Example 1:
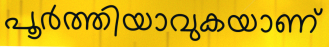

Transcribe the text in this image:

പൂർത്തിയാവുകയാണ്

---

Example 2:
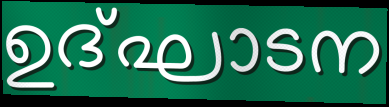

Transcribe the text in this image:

ഉദ്ഘാടന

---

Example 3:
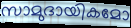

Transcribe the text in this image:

സാമുദായികമോ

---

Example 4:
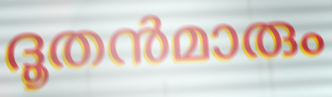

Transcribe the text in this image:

ദൂതൻമാരും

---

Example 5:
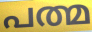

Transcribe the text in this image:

പത്മ